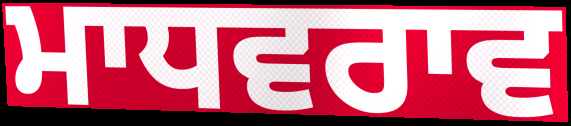
ਮਾਧਵਰਾਵ